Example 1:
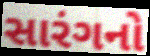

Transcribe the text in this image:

સારંગનો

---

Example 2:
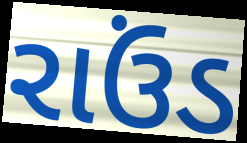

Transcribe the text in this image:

રાઉંડ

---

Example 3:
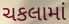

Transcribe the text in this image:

ચકલામાં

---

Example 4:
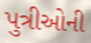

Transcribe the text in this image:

પુત્રીઓની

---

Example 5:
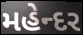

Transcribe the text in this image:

મહેન્દર